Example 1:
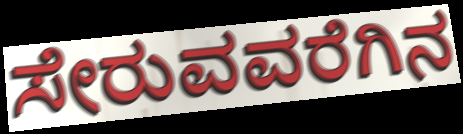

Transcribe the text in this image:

ಸೇರುವವರೆಗಿನ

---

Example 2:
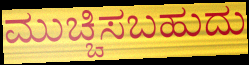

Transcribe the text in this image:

ಮುಚ್ಚಿಸಬಹುದು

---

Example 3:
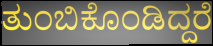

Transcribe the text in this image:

ತುಂಬಿಕೊಂಡಿದ್ದರೆ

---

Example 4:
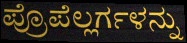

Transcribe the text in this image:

ಪ್ರೊಪೆಲ್ಲರ್ಗಳನ್ನು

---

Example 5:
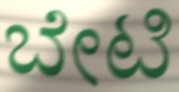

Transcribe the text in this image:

ಬೇಟಿ